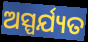
ଅସ୍ପର୍ଯ୍ୟତ